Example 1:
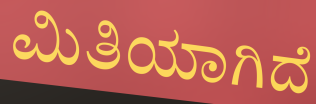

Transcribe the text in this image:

ಮಿತಿಯಾಗಿದೆ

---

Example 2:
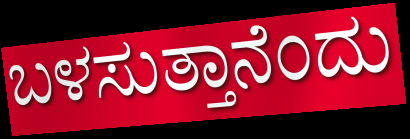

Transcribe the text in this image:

ಬಳಸುತ್ತಾನೆಂದು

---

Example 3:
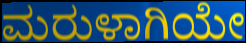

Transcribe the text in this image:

ಮರುಳಾಗಿಯೇ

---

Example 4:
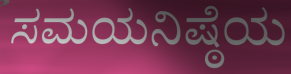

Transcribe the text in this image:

ಸಮಯನಿಷ್ಠೆಯ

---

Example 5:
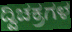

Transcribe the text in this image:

ದ್ವಿಚಕ್ರಗಳ